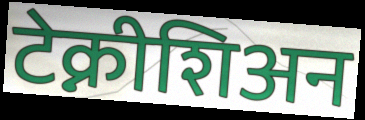
टेक्नीशिअन